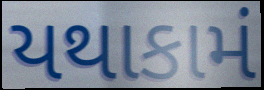
યથાકામં